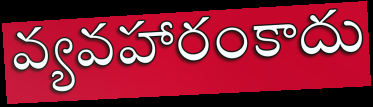
వ్యవహారంకాదు